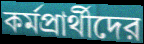
কর্মপ্রার্থীদের